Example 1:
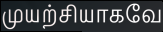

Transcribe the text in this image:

முயற்சியாகவே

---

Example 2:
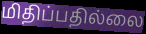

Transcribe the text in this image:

மிதிப்பதில்லை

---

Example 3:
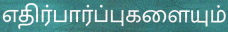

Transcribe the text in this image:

எதிர்பார்ப்புகளையும்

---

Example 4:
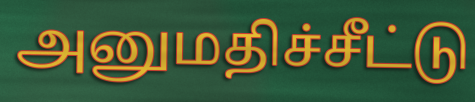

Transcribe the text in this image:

அனுமதிச்சீட்டு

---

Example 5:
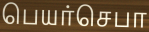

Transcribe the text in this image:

பெயர்செபா